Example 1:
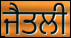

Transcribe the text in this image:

ਜੈਤਲੀ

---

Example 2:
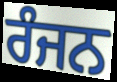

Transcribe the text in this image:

ਰੰਜਨ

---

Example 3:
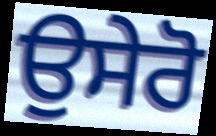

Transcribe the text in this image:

ਉਸੇਰੋ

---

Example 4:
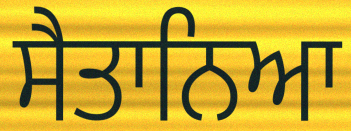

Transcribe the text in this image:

ਸੈਤਾਨਿਆ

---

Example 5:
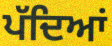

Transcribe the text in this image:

ਪੱਦਿਆਂ